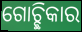
ଗୋଚ୍ଛିକାର